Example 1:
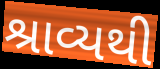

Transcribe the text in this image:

શ્રાવ્યથી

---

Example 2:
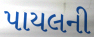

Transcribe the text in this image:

પાયલની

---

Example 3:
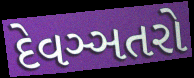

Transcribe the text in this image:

દેવઞ્ઞતરો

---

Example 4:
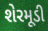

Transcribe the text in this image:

શેરમૂડી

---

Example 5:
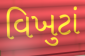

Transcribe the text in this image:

વિખુટાં